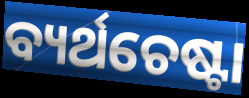
ବ୍ୟର୍ଥଚେଷ୍ଟା